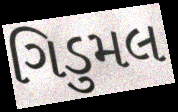
ગિડુમલ